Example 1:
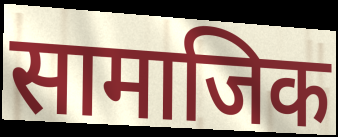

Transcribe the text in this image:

सामाजिक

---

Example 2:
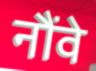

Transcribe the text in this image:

नौंवे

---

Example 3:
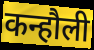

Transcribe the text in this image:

कन्हौली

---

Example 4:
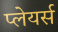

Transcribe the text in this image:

प्‍लेयर्स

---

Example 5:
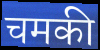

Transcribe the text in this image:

चमकी